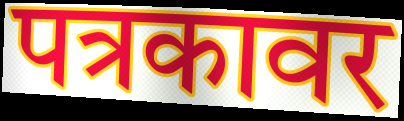
पत्रकावर